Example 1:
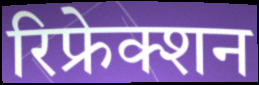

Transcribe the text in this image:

रिफ्रेक्शन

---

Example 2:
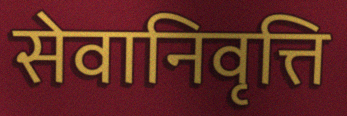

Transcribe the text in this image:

सेवानिवृत्ति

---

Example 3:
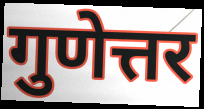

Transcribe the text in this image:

गुणेत्तर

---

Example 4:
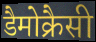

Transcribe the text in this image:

डैमोक्रैसी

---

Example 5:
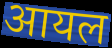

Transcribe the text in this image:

आयल